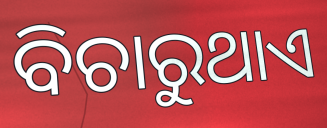
ବିଚାରୁଥାଏ